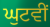
ਘੁਟਵੀਂ